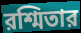
রশ্মিতার